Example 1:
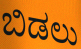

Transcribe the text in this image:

ಬಿಡಲು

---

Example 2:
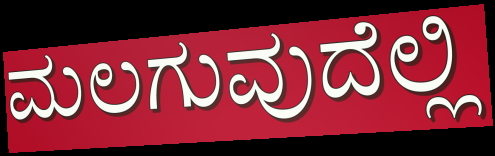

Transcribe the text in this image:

ಮಲಗುವುದೆಲ್ಲಿ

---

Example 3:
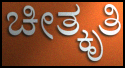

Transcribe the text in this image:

ಚೀತ್ಕೃತಿ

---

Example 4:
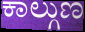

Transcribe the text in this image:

ಕಾಲ್ಗುಣ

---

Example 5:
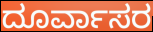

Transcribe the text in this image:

ದೂರ್ವಾಸರ